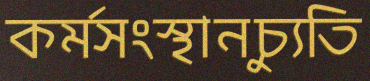
কর্মসংস্থানচ্যুতি